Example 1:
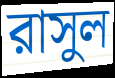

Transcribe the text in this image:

রাসুল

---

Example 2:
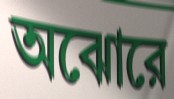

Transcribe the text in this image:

অঝোরে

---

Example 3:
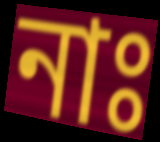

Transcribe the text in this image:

নাঃ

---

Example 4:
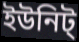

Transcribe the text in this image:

ইউনিট্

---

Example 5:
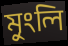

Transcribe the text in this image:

মুংলি